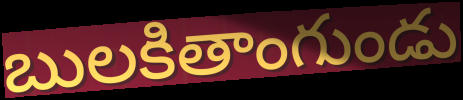
బులకితాంగుండు